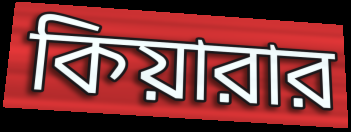
কিয়ারার